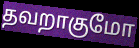
தவறாகுமோ